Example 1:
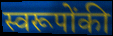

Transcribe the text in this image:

स्वरूपोंकी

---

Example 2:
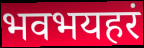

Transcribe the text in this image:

भवभयहरं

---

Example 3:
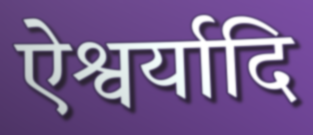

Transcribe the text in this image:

ऐश्वर्यादि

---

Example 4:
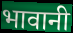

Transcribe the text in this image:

भावानी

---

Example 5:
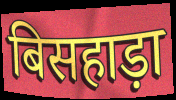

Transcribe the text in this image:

बिसहाड़ा